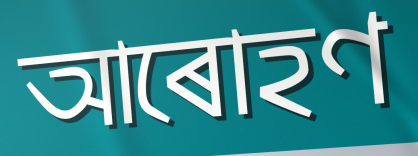
আৰোহণ